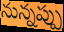
నున్నప్పు